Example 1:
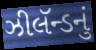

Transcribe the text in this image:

ઝીલૅન્ડનું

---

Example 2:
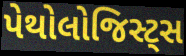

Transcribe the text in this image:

પેથોલોજિસ્ટ્સ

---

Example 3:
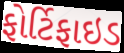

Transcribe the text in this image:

ફોર્ટિફાઇડ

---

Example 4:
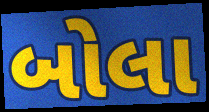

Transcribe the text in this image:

બોલા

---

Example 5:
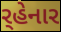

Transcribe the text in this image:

ર્‌હેનાર